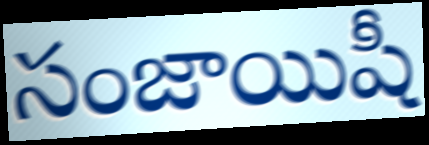
సంజాయిషీ